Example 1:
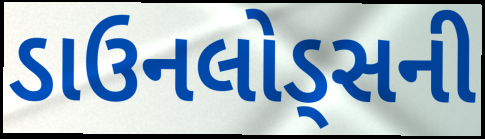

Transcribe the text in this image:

ડાઉનલોડ્સની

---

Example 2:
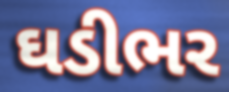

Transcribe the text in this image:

ઘડીભર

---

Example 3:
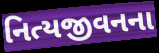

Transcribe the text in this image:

નિત્યજીવનના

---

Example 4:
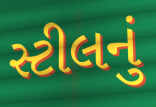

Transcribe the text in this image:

સ્ટીલનું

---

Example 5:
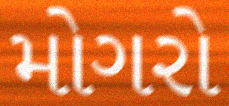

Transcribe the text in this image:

મોગરો